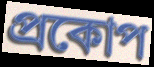
প্ৰকোপ